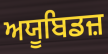
ਅਯੂਬਿਡਜ਼